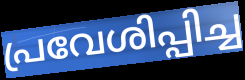
പ്രവേശിപ്പിച്ച